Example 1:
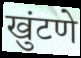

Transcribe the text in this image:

खुंटणे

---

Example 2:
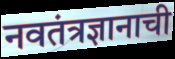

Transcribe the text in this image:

नवतंत्रज्ञानाची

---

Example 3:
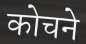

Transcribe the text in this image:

कोचने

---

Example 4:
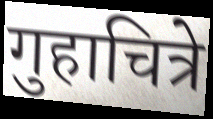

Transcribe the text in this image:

गुहाचित्रे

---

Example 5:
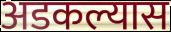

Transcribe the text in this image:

अडकल्यास